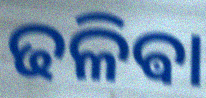
ଢଳିଵା